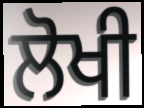
ਲੋਖੀ